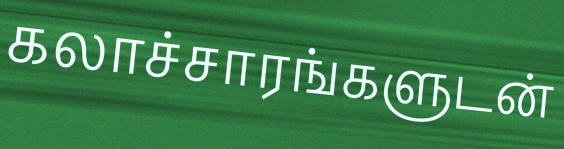
கலாச்சாரங்களுடன்